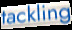
tackling